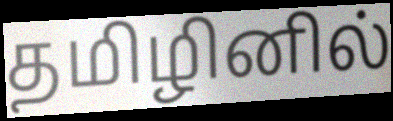
தமிழினில்